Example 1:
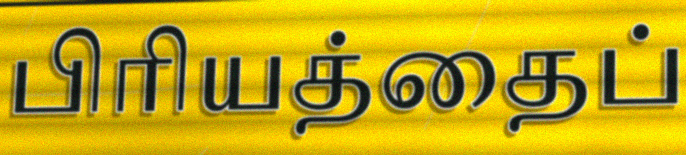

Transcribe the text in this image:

பிரியத்தைப்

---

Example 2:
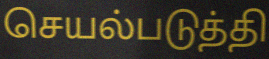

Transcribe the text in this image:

செயல்படுத்தி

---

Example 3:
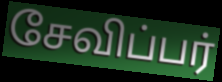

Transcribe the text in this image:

சேவிப்பர்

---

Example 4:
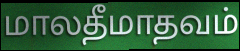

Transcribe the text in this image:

மாலதீமாதவம்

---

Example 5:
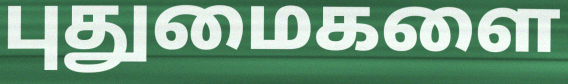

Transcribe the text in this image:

புதுமைகளை